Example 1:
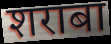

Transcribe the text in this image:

शराबा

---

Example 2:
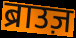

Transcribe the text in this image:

ब्राउज़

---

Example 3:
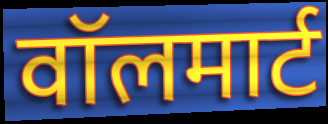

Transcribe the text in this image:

वॉलमार्ट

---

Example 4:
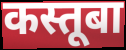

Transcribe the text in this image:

कस्तूबा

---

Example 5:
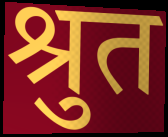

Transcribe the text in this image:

श्रुत